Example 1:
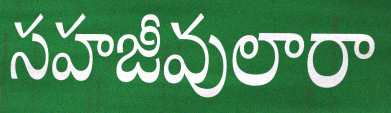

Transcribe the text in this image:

సహజీవులారా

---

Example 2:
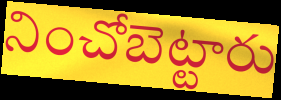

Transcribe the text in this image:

నించోబెట్టారు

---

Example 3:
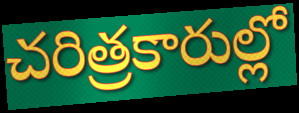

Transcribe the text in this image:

చరిత్రకారుల్లో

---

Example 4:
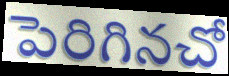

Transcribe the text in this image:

పెరిగినచో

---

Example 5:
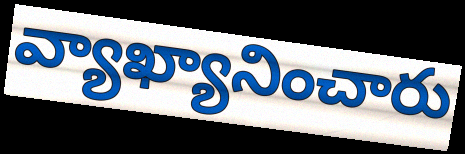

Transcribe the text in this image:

వ్యాఖ్యానించారు